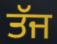
ਤੱਜ